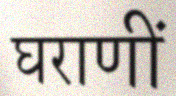
घराणीं